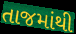
તાજમાંથી